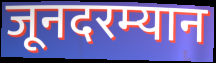
जूनदरम्यान